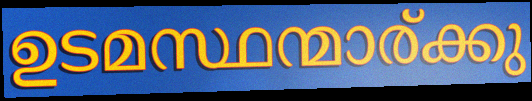
ഉടമസ്ഥന്മാര്ക്കു